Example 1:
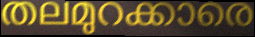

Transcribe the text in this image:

തലമുറക്കാരെ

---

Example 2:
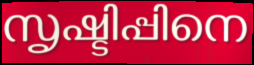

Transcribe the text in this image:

സൃഷ്ടിപ്പിനെ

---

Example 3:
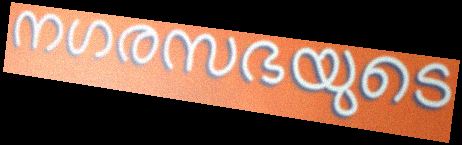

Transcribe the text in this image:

നഗരസഭയുടെ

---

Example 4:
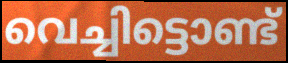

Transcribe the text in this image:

വെച്ചിട്ടൊണ്ട്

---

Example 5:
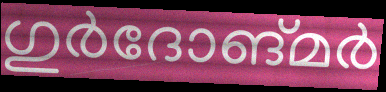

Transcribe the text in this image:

ഗുർദോങ്മർ